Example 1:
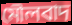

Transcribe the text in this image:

মৌলবাদ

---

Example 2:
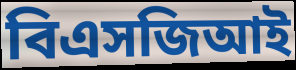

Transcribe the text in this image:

বিএসজিআই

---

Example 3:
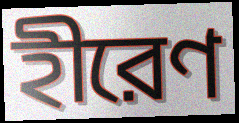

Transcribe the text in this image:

হীরেণ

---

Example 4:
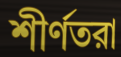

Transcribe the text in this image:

শীর্ণতরা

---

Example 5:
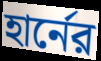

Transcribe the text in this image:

হার্নের